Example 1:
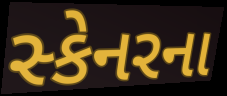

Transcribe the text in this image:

સ્કેનરના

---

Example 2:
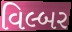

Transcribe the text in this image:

વિલ્બર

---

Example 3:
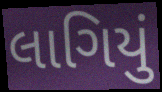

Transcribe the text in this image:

લાગિયું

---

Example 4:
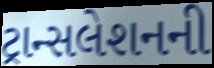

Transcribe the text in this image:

ટ્રાન્સલેશનની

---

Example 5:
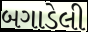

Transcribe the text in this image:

બગાડેલી